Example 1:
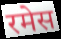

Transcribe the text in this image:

रमेस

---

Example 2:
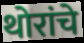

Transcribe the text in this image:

थोरांचे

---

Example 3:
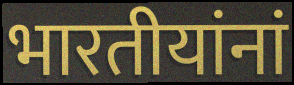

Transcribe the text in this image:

भारतीयांनां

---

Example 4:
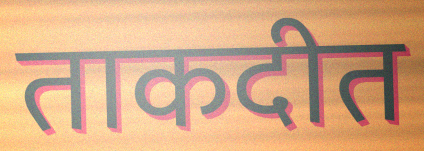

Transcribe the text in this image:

ताकदीत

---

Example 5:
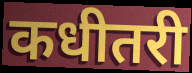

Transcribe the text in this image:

कधीतरी